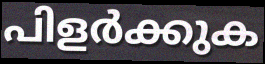
പിളർക്കുക